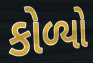
કોળ્યો